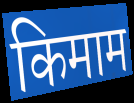
किमाम